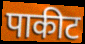
पाकीट